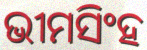
ଭୀମସିଂହ